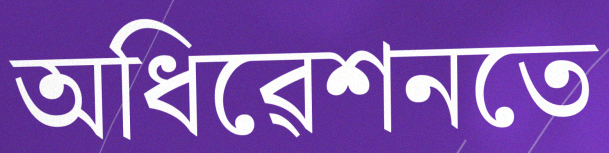
অধিৱেশনতে